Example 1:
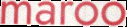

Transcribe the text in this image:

maroo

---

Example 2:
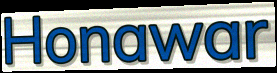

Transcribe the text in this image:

Honawar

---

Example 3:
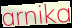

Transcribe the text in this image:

arnika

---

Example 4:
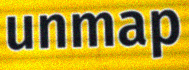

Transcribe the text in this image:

unmap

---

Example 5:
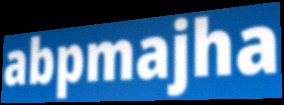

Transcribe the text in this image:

abpmajha